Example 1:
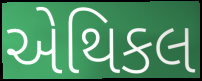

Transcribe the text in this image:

એથિકલ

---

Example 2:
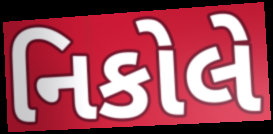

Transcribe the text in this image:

નિકોલે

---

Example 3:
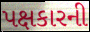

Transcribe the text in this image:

પક્ષકારની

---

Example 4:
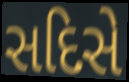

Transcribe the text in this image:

સદિસે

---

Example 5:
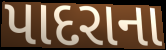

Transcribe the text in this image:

પાદરાના